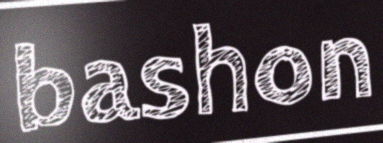
bashon